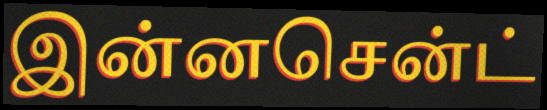
இன்னசென்ட்